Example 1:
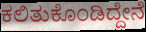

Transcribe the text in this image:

ಕಲಿತುಕೊಂಡಿದ್ದೇನೆ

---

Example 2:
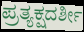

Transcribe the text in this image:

ಪ್ರತ್ಯಕ್ಷದರ್ಶೀ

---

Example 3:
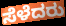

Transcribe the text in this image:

ಸೆಳೆದರು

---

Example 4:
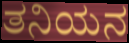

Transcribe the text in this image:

ತನಿಯನ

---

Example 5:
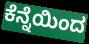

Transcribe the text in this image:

ಕೆನ್ನೆಯಿಂದ